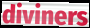
diviners